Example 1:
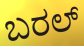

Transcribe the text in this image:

ಬರಲ್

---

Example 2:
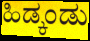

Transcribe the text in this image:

ಹಿಡ್ಕಂಡು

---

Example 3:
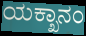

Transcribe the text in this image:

ಯಕ್ಖಾನಂ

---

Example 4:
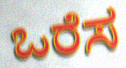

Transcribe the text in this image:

ಒರೆಸ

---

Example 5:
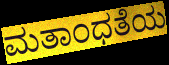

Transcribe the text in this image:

ಮತಾಂಧತೆಯ